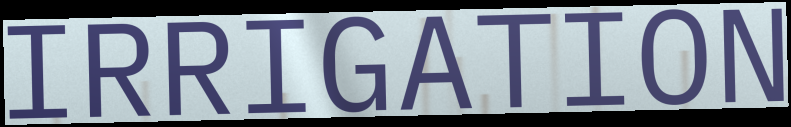
IRRIGATION